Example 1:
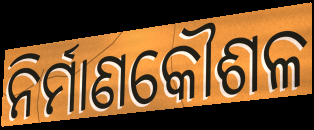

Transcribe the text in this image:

ନିର୍ମାଣକୌଶଳ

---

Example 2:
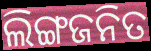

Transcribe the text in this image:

ଲିଙ୍ଗଜନିତ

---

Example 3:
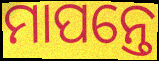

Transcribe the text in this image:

ମାପନ୍ତେ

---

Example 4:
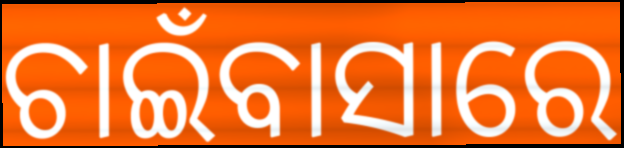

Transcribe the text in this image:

ଚାଇଁବାସାରେ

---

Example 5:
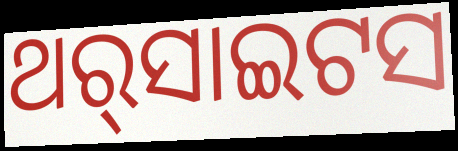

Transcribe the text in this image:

ଥର୍‌ସାଇଟସ